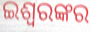
ଇଶ୍ୱରଙ୍କର